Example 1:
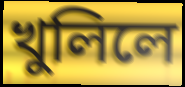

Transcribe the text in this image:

খুলিলে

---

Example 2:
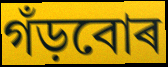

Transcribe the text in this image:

গঁড়বোৰ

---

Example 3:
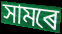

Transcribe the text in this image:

সামৰে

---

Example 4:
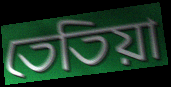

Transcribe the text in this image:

তেতিয়া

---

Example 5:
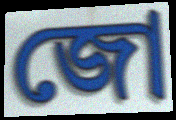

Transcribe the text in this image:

জো